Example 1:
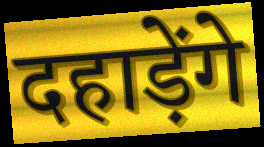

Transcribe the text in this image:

दहाड़ेंगे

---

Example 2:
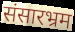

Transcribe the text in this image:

संसारभ्रम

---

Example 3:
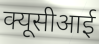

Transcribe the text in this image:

क्यूसीआई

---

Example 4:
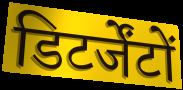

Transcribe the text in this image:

डिटर्जेंटों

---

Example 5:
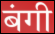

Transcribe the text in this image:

बंगी